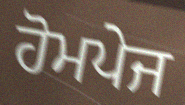
ਹੋਮਪੇਜ